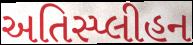
અતિસ્પ્લીહન